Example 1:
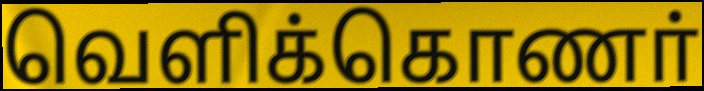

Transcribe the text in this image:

வெளிக்கொணர்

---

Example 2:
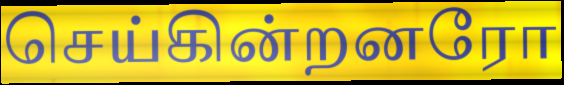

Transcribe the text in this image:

செய்கின்றனரோ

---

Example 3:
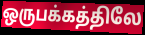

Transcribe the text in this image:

ஒருபக்கத்திலே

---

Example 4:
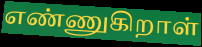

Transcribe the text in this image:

எண்ணுகிறாள்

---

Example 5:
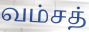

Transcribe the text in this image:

வம்சத்